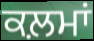
ਕਲ਼ਮਾਂ